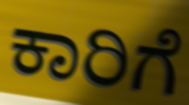
ಕಾರಿಗೆ